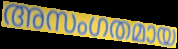
അസംഗതമായ